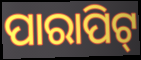
ପାରାପିଟ୍